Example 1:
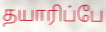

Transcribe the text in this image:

தயாரிப்பே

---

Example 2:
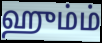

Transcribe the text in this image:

ஹும்ம்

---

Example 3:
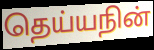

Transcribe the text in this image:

தெய்யநின்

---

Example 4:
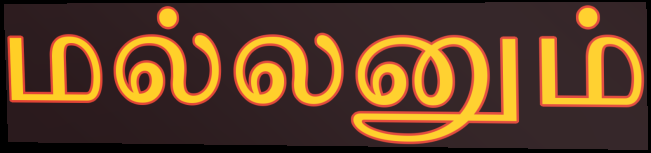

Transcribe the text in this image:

மல்லனும்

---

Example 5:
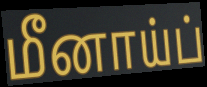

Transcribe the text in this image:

மீனாய்ப்